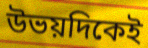
উভয়দিকেই